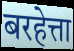
बरहेत्ता